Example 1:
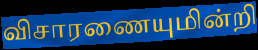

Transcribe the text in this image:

விசாரணையுமின்றி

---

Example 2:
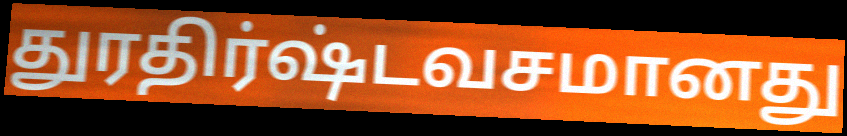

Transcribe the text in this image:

துரதிர்ஷ்டவசமானது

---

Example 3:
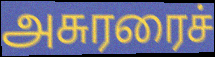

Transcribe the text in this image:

அசுரரைச்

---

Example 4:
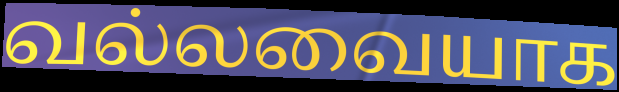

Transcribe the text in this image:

வல்லவையாக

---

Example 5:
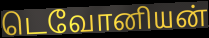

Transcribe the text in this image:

டெவோனியன்